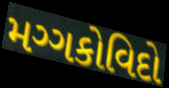
મગ્ગકોવિદો